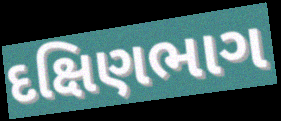
દક્ષિણભાગ